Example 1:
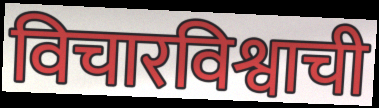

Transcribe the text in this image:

विचारविश्वाची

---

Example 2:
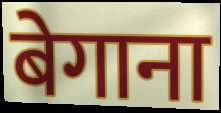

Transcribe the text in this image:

बेगाना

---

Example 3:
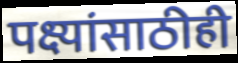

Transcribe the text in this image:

पक्ष्यांसाठीही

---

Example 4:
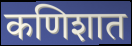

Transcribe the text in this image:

कणिशात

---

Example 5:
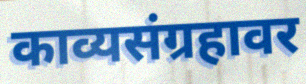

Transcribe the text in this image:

काव्यसंग्रहावर